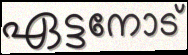
ഏട്ടനോട്